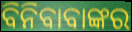
ବିନିବାବାଙ୍କର